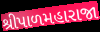
શ્રીપાળમહારાજા